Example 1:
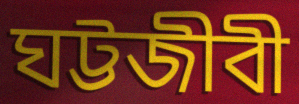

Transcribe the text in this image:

ঘট্টজীবী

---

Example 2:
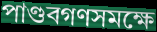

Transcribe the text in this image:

পাণ্ডবগণসমক্ষে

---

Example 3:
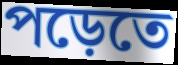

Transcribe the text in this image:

পড়েতে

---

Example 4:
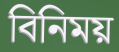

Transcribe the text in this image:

বিনিময়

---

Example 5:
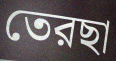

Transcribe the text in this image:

তেরছা